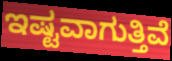
ಇಷ್ಟವಾಗುತ್ತಿವೆ